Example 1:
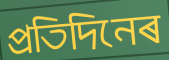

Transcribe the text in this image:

প্ৰতিদিনেৰ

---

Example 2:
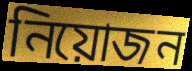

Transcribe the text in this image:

নিয়োজন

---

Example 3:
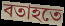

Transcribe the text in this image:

বতাহতে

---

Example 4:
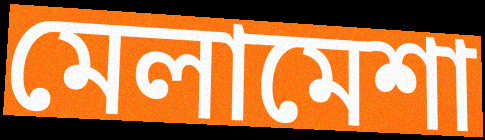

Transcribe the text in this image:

মেলামেশা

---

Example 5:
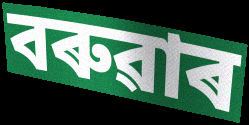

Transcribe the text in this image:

বৰুৱাৰ